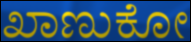
ಖಾಣುಕೋ